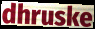
dhruske